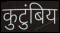
कुटुंबिय